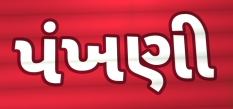
પંખણી